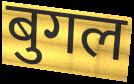
बुगल